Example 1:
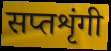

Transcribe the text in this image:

सप्तशृंगी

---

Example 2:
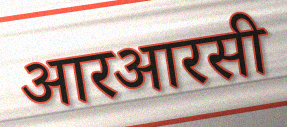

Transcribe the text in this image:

आरआरसी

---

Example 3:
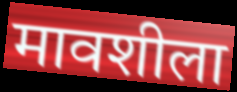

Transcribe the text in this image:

मावशीला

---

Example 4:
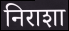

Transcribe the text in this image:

निराशा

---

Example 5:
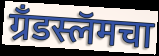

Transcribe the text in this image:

ग्रँडस्लॅमचा